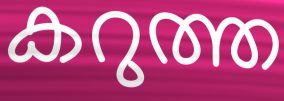
കറുത്ത